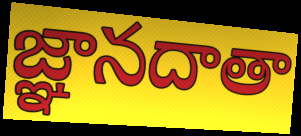
జ్ఞానదాతా